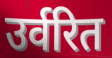
उर्वरित